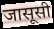
जासूसी